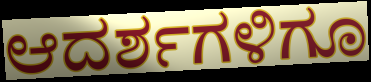
ಆದರ್ಶಗಳಿಗೂ